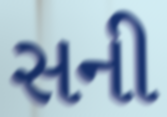
સની